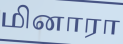
மினாரா